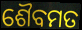
ଶୈବମତ